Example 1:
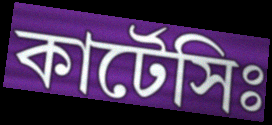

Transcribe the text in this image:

কার্টেসিঃ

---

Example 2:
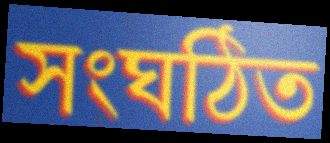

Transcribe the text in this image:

সংঘঠিত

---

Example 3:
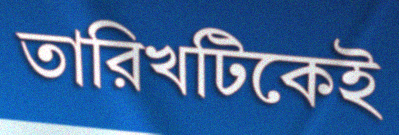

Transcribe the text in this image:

তারিখটিকেই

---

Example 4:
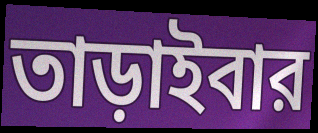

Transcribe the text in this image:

তাড়াইবার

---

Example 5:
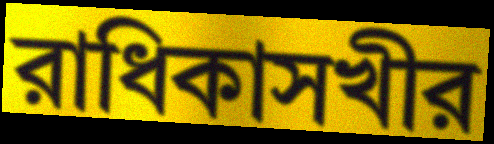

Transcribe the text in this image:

রাধিকাসখীর